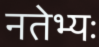
नतेभ्यः